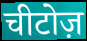
चीटोज़